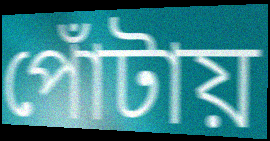
পোঁটায়